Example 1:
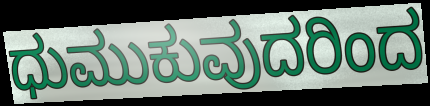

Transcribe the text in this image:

ಧುಮುಕುವುದರಿಂದ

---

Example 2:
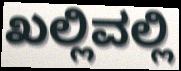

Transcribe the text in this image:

ಖಲ್ಲಿವಲ್ಲಿ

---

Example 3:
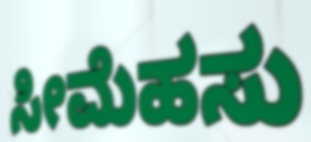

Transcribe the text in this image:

ಸೀಮೆಹಸು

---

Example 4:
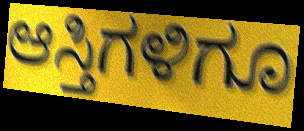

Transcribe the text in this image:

ಆಸ್ತಿಗಳಿಗೂ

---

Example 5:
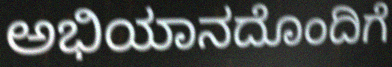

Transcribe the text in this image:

ಅಭಿಯಾನದೊಂದಿಗೆ